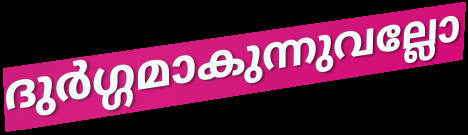
ദുർഗ്ഗമാകുന്നുവല്ലോ